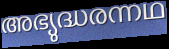
അഭ്യുദ്ധരന്നഥ